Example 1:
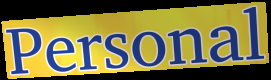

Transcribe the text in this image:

Personal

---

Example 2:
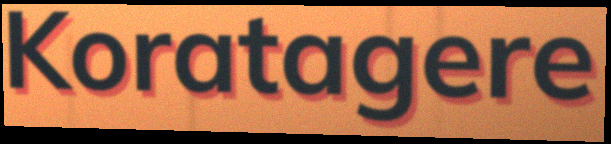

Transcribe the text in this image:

Koratagere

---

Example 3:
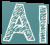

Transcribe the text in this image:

AI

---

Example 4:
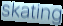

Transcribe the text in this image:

skating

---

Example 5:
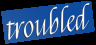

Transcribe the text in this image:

troubled